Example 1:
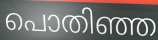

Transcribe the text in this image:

പൊതിഞ്ഞ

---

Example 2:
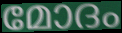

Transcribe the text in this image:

മോദം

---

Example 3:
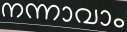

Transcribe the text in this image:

നന്നാവാം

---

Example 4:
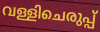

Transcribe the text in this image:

വള്ളിചെരുപ്പ്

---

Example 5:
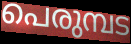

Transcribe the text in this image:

പെരുമ്പട